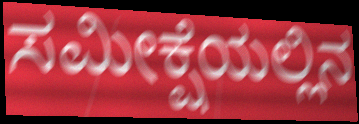
ಸಮೀಕ್ಷೆಯಲ್ಲಿನ